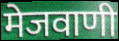
मेजवाणी